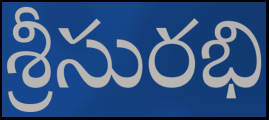
శ్రీసురభి